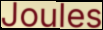
Joules